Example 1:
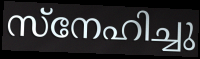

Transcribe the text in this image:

സ്നേഹിച്ചു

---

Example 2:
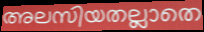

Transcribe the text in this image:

അലസിയതല്ലാതെ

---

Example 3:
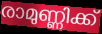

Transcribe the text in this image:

രാമുണ്ണിക്ക്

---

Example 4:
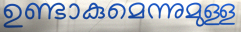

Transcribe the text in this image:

ഉണ്ടാകുമെന്നുമുള്ള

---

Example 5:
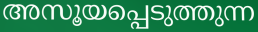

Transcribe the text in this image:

അസൂയപ്പെടുത്തുന്ന